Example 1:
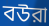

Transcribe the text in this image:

বউরা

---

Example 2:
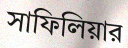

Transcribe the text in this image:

সাফিলিয়ার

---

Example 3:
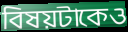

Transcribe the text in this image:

বিষয়টাকেও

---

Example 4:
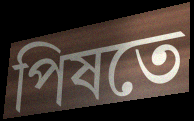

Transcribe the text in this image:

পিষতে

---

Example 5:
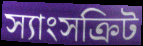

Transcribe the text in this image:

স্যাংসক্রিট